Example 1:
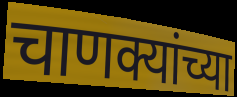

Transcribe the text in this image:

चाणक्यांच्या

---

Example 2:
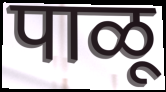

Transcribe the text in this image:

पाळू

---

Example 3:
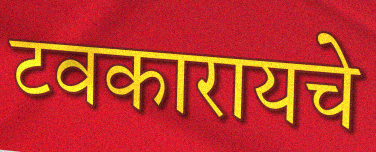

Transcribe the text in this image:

टवकारायचे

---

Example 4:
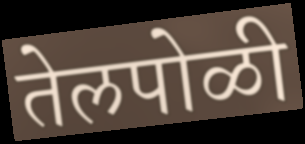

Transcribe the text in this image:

तेलपोळी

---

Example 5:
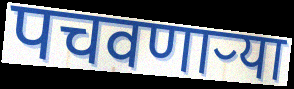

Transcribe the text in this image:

पचवणाऱ्या